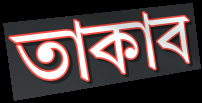
তাকাব